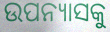
ଉପନ୍ୟାସକୁ